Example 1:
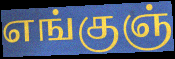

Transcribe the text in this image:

எங்குஞ்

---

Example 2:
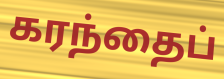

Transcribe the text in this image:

கரந்தைப்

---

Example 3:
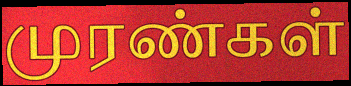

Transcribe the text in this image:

முரண்கள்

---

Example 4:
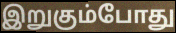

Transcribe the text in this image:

இறுகும்போது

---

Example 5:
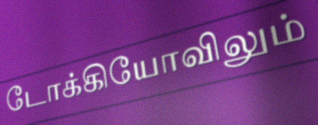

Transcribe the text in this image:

டோக்கியோவிலும்